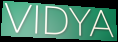
VIDYA